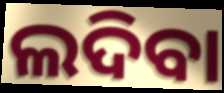
ଲଦିବା